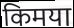
किमया